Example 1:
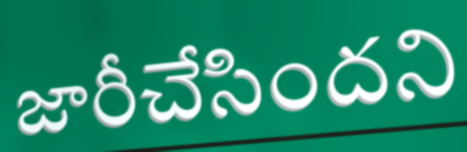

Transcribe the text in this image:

జారీచేసిందని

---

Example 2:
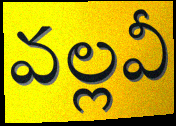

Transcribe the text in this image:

వల్లవీ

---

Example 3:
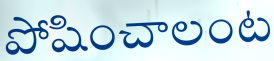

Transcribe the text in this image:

పోషించాలంట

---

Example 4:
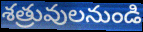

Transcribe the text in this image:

శత్రువులనుండి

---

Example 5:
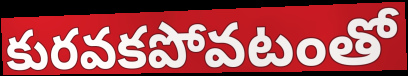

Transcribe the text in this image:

కురవకపోవటంతో